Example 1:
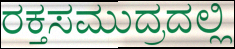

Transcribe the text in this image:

ರಕ್ತಸಮುದ್ರದಲ್ಲಿ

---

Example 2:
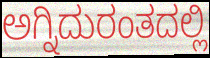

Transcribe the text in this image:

ಅಗ್ನಿದುರಂತದಲ್ಲಿ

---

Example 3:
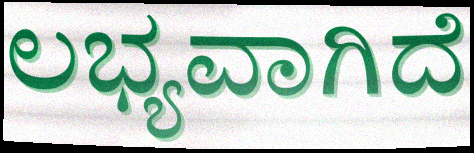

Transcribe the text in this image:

ಲಭ್ಯವಾಗಿದೆ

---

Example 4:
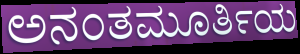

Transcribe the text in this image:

ಅನಂತಮೂರ್ತಿಯ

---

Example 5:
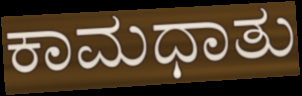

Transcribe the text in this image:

ಕಾಮಧಾತು